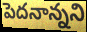
పెదనాన్నని